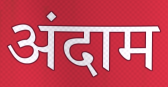
अंदाम